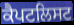
ਕੈਪਟਲਿਸਟ